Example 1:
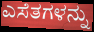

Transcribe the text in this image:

ಎಸೆತಗಳನ್ನು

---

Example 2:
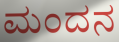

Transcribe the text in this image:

ಮಂದನ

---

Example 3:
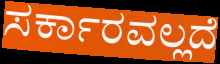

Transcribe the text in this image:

ಸರ್ಕಾರವಲ್ಲದೆ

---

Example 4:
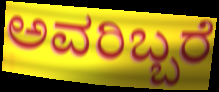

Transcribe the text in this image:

ಅವರಿಬ್ಬರೆ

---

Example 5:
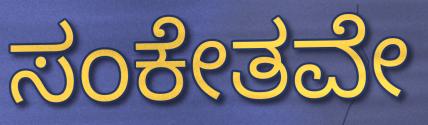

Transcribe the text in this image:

ಸಂಕೇತವೇ